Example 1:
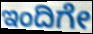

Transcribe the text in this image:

ಇಂದಿಗೇ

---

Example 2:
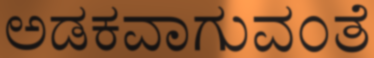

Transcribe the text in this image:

ಅಡಕವಾಗುವಂತೆ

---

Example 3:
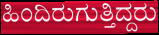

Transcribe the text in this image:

ಹಿಂದಿರುಗುತ್ತಿದ್ದರು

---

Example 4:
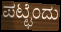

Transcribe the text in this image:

ಪಟ್ಟೆಂದು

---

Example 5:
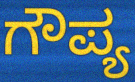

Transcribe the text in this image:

ಗೌಪ್ಯ